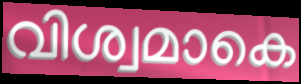
വിശ്വമാകെ